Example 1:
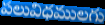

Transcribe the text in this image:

పలువిధములగు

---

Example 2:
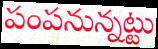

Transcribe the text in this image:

పంపనున్నట్టు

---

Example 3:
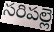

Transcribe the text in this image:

సరిపల్లె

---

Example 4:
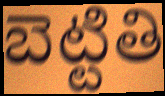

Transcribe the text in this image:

బెట్టితి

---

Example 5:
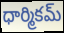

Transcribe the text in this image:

ధార్మికమ్